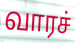
வாரச்